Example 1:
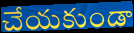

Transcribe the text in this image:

చేయకుండా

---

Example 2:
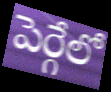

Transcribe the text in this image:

పెర్గేలో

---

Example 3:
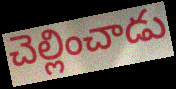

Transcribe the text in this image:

చెల్లించాడు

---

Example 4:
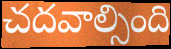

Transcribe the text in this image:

చదవాల్సింది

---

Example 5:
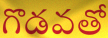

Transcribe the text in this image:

గొడవతో